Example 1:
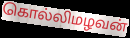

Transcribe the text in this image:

கொல்லிமழவன்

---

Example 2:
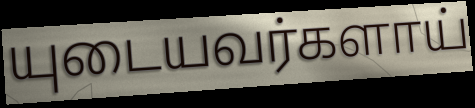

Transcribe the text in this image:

யுடையவர்களாய்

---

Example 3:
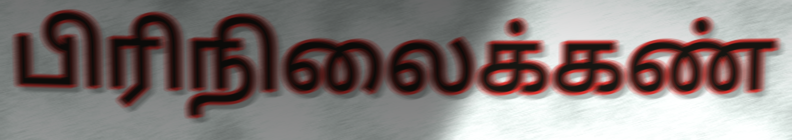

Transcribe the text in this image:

பிரிநிலைக்கண்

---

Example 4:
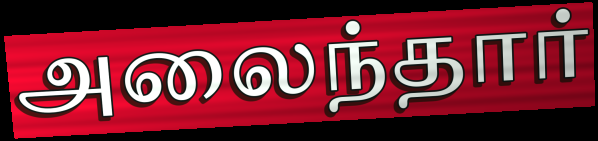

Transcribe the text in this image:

அலைந்தார்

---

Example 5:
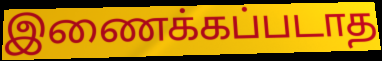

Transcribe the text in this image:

இணைக்கப்படாத